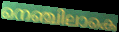
നെഞ്ചിലാകെ